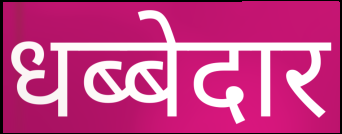
धब्बेदार